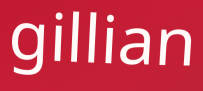
gillian